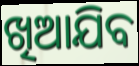
ଖିଆଯିବ